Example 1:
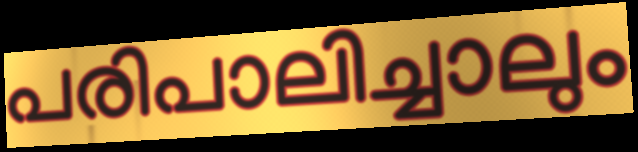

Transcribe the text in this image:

പരിപാലിച്ചാലും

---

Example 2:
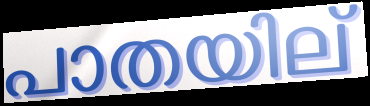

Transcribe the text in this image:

പാതയില്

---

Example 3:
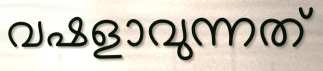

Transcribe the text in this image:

വഷളാവുന്നത്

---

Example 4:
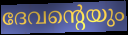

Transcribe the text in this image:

ദേവന്റെയും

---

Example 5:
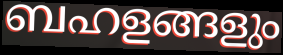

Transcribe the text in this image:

ബഹളങ്ങളും